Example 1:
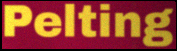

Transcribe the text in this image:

Pelting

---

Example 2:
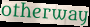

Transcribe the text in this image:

otherway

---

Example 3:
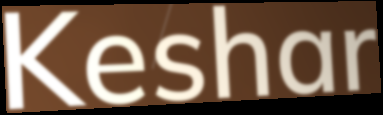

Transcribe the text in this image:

Keshar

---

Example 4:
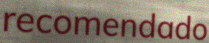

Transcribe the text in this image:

recomendado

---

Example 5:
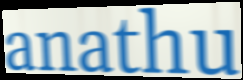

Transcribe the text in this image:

anathu